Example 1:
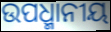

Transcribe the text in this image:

ଉପଧ୍ମାନୀୟ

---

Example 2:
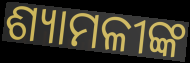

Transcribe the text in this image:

ଶ୍ୟାମଳୀଙ୍କ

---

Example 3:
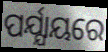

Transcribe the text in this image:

ପର୍ଯ୍ଯାୟରେ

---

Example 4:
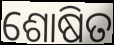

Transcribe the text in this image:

ଶୋଷିତ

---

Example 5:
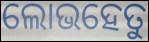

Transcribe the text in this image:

ଲୋଭହେତୁ